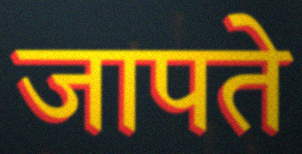
जापते